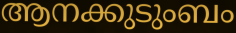
ആനക്കുടുംബം